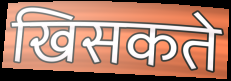
खिसकते